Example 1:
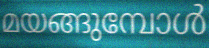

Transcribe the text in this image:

മയങ്ങുമ്പോൾ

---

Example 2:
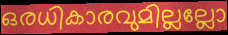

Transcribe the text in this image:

ഒരധികാരവുമില്ലല്ലോ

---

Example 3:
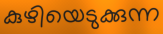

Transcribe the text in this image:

കുഴിയെടുക്കുന്ന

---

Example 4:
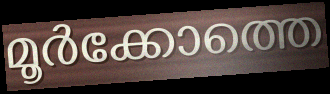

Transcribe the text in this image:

മൂർക്കോത്തെ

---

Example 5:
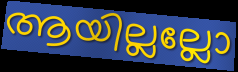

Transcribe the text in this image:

ആയില്ലല്ലോ